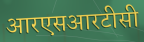
आरएसआरटीसी